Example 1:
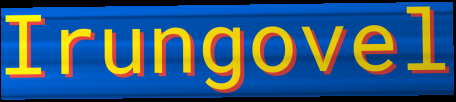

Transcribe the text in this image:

Irungovel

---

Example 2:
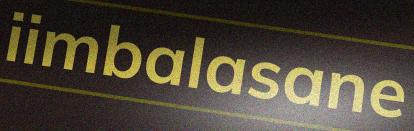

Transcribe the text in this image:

iimbalasane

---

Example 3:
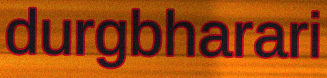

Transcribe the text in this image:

durgbharari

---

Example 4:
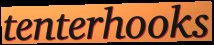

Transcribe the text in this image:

tenterhooks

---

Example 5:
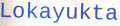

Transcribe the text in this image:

Lokayukta